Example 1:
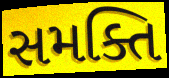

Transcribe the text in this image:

સમક્તિ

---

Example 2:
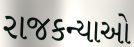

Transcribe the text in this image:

રાજકન્યાઓ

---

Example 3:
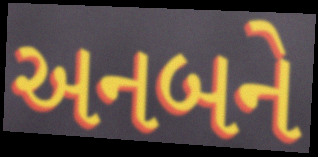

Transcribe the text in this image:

અનબને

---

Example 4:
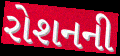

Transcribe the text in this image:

રોશનની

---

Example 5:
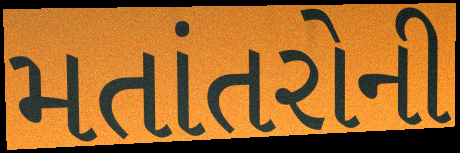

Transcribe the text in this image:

મતાંતરોની